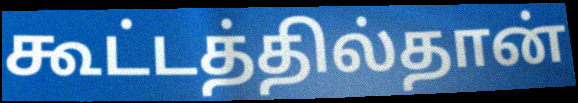
கூட்டத்தில்தான்